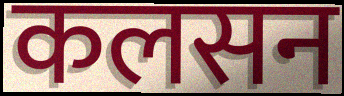
कलसन